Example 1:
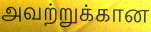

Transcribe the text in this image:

அவற்றுக்கான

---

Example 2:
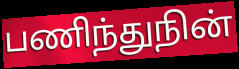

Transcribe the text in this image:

பணிந்துநின்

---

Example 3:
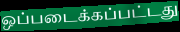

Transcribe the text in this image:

ஒப்படைக்கப்பட்டது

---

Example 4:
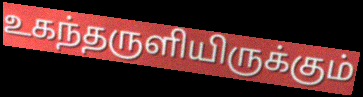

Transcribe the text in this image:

உகந்தருளியிருக்கும்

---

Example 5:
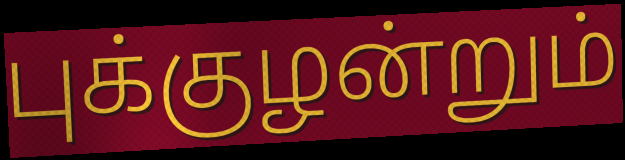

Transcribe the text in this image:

புக்குழன்றும்